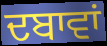
ਦਬਾਵਾਂ